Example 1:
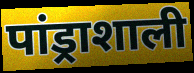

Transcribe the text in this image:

पांड्राशाली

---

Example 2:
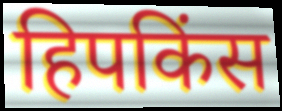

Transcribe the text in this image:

हिपकिंस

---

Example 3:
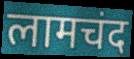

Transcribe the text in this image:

लामचंद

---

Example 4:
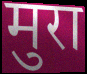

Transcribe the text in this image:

मुरा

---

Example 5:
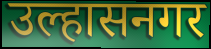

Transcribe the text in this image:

उल्हासनगर